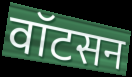
वॉटसन